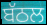
ਬੱਠਲ